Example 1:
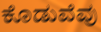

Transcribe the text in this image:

ಕೊಡುವೆವು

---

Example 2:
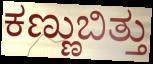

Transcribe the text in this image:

ಕಣ್ಣುಬಿತ್ತು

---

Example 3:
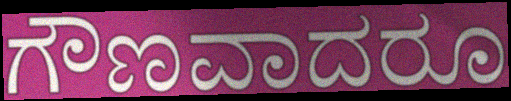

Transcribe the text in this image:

ಗೌಣವಾದರೂ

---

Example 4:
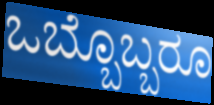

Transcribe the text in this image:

ಒಬ್ಬೊಬ್ಬರೂ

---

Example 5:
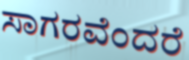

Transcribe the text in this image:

ಸಾಗರವೆಂದರೆ